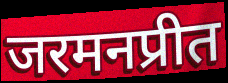
जरमनप्रीत